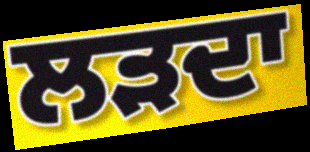
ਲੜਦਾ